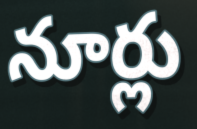
నూర్లు